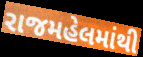
રાજમહેલમાંથી